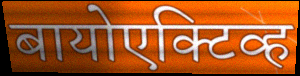
बायोएक्टिव्ह